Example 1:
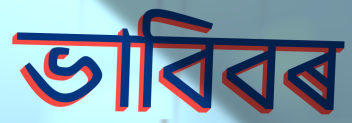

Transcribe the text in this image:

ভাবিবৰ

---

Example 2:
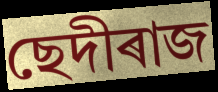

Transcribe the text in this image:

ছেদীৰাজ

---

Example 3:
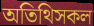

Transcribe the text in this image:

অতিথিসকল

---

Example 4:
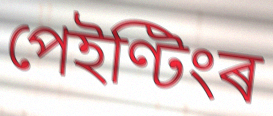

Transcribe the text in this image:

পেইণ্টিংৰ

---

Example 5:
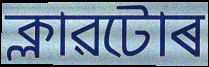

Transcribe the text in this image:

ক্লাৱটোৰ